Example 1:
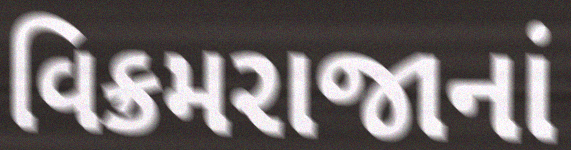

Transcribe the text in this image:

વિક્રમરાજાનાં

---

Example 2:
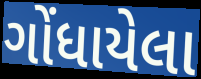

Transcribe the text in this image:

ગોંધાયેલા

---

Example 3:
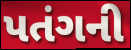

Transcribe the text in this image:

પતંગની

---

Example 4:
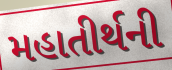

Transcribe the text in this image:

મહાતીર્થની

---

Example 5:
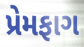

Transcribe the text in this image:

પ્રેમફાગ